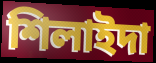
শিলাইদা